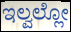
ಇಲ್ವಲ್ಲೋ